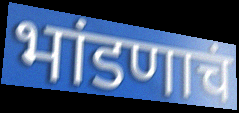
भांडणाचं